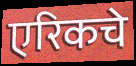
एरिकचे